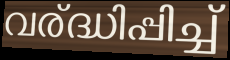
വര്ദ്ധിപ്പിച്ച്